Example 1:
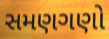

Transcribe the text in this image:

સમણગણો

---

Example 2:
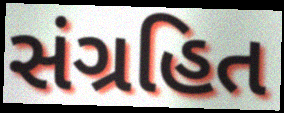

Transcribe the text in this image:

સંગ્રહિત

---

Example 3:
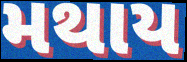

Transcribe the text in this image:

મથાય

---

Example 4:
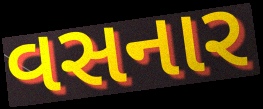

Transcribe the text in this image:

વસનાર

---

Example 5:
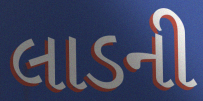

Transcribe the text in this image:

લાડની